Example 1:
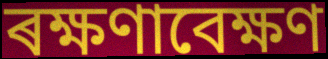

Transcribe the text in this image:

ৰক্ষণাবেক্ষণ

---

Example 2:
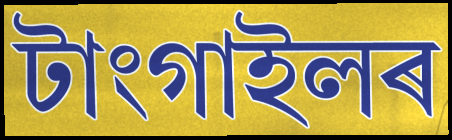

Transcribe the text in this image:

টাংগাইলৰ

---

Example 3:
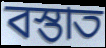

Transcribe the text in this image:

বস্তাত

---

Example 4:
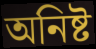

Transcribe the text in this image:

অনিষ্ট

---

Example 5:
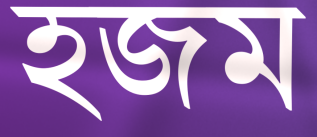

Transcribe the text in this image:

হজম